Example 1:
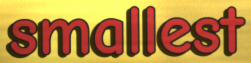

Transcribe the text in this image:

smallest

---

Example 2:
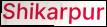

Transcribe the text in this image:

Shikarpur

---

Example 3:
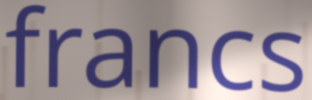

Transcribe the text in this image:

francs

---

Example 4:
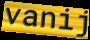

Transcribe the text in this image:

vanij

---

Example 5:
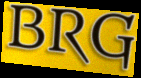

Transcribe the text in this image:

BRG